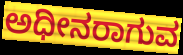
ಅಧೀನರಾಗುವ